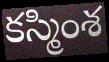
కస్మింశ